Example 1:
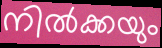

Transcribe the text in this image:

നിൽക്കയും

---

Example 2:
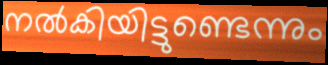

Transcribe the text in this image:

നൽകിയിട്ടുണ്ടെന്നും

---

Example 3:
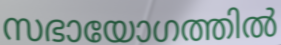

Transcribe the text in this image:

സഭായോഗത്തിൽ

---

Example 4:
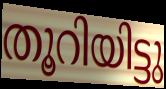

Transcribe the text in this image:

തൂറിയിട്ടു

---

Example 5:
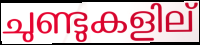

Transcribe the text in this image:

ചുണ്ടുകളില്